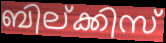
ബില്ക്കിസ്